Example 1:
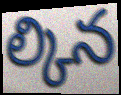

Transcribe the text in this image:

ల్కిన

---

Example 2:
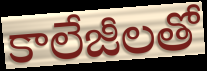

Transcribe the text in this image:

కాలేజీలతో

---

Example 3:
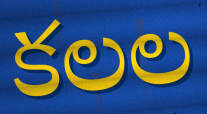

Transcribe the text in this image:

కలల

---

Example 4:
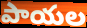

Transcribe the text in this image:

పాయల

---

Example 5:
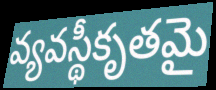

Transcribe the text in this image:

వ్యవస్థీకృతమై